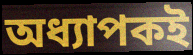
অধ্যাপকই